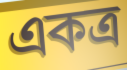
একত্র